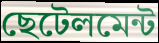
ছেটেলমেন্ট